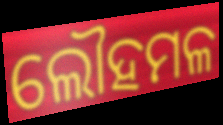
ଲୌହମଳ